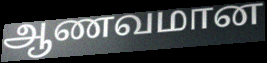
ஆணவமான